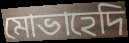
মোভাহেদি